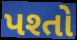
પશ્તો